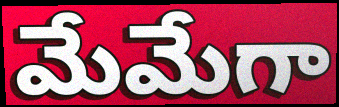
మేమేగా